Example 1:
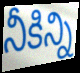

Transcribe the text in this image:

నీకిన్ని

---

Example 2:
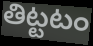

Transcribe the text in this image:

తిట్టటం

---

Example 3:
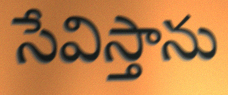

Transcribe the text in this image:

సేవిస్తాను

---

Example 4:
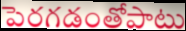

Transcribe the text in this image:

పెరగడంతోపాటు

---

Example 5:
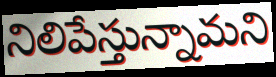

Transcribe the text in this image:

నిలిపేస్తున్నామని